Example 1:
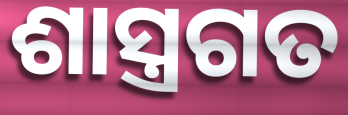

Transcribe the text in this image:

ଶାସ୍ତ୍ରଗତ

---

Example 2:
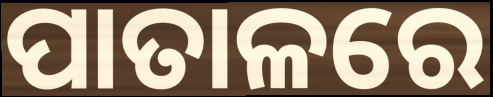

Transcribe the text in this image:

ପାତାଳରେ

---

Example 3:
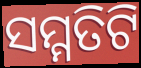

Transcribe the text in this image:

ସମ୍ମତିଟି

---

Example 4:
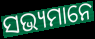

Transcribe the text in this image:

ସଭ୍ୟମାନେ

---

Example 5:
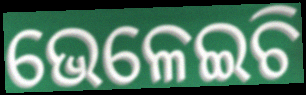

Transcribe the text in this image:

ଭେଳେଇଚି